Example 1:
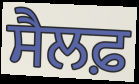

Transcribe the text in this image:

ਸੈਲਫ਼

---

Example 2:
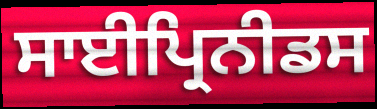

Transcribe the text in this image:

ਸਾਈਪ੍ਰਿਨੀਡਸ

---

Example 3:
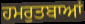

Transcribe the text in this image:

ਹਮਰੁਤਬਾਆਂ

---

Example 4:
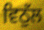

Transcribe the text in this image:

ਵਿਠੁੱਲ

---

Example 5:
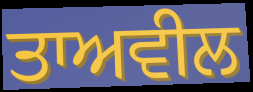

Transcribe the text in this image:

ਤਾਅਵੀਲ